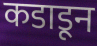
कडाडून